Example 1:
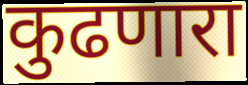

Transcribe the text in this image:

कुढणारा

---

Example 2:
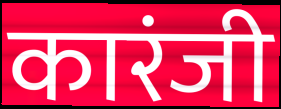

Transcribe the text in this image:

कारंजी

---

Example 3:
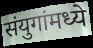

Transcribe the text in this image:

संयुगांमध्ये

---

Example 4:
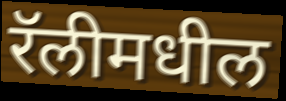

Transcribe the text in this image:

रॅलीमधील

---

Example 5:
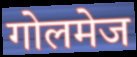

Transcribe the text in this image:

गोलमेज